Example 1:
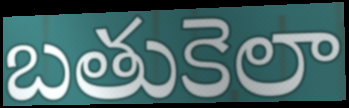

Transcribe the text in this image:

బతుకెలా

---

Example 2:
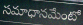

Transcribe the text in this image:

సమాధానమేంటో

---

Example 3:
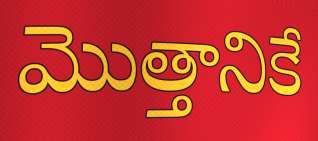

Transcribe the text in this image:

మొత్తానికే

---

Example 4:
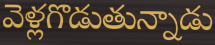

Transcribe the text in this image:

వెళ్లగొడుతున్నాడు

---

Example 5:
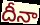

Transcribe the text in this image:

దీనా